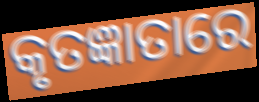
କୃତଜ୍ଞାତାରେ